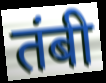
तंबी